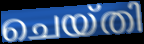
ചെയ്‌തി